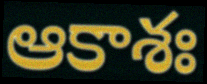
ఆకాశః